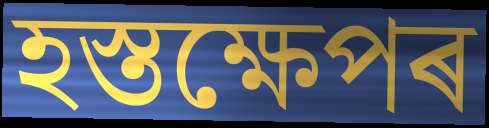
হস্তক্ষেপৰ